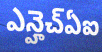
ఎన్హెచ్ఏఐ